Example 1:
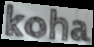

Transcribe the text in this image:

koha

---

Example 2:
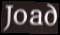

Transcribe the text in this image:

Joad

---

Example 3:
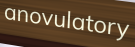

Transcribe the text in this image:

anovulatory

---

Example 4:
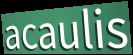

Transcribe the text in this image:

acaulis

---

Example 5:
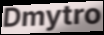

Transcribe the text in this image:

Dmytro